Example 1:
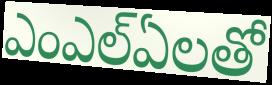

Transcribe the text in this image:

ఎంఎల్ఏలతో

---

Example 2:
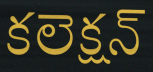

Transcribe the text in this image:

కలెక్షన్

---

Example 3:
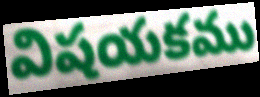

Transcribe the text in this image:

విషయకము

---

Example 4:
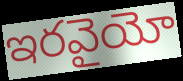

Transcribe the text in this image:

ఇరవైయో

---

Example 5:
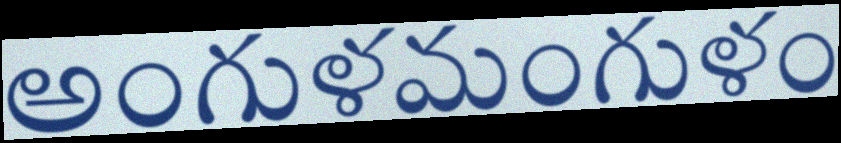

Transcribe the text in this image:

అంగుళమంగుళం